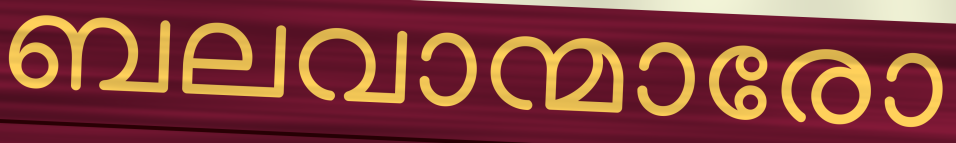
ബലവാന്മാരോ